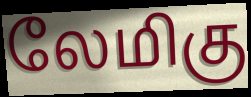
லேமிகு